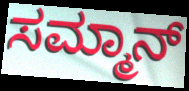
ಸಮ್ಮಾನ್